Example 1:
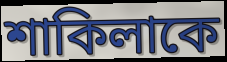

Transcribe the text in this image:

শাকিলাকে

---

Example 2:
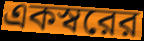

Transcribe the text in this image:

একস্বরের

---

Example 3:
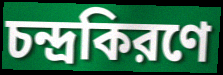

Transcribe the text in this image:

চন্দ্রকিরণে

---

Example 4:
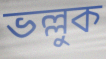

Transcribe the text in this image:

ভল্লুক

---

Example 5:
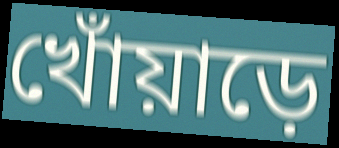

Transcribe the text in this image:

খোঁয়াড়ে